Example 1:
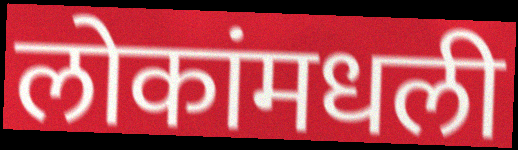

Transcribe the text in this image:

लोकांमधली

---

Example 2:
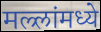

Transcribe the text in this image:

मल्लांमध्ये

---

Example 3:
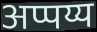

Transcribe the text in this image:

अप्पय्य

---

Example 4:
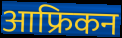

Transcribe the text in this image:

आफ्रिकन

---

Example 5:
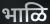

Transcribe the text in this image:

भाळि